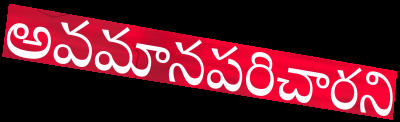
అవమానపరిచారని